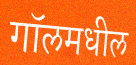
गॉलमधील